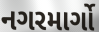
નગરમાર્ગો